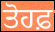
ਤੋਹਫ਼